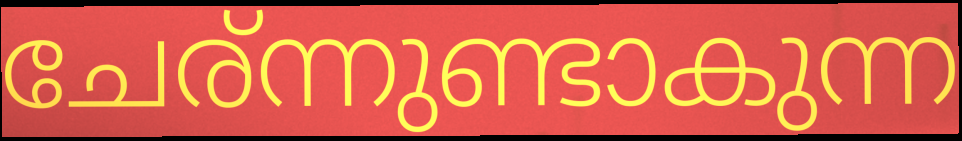
ചേര്ന്നുണ്ടാകുന്ന